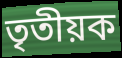
তৃতীয়ক